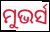
ମୁଭର୍ସ